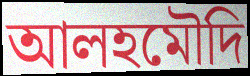
আলহমৌদি